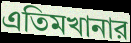
এতিমখানার